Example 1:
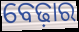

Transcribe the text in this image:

ବେଢ଼ାର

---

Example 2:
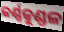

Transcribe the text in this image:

କର୍ଣ୍ଣକୁଣ୍ଡଳ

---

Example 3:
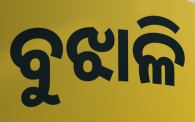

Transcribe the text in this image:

ବୁଝାଳି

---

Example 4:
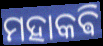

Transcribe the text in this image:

ମହାକଵି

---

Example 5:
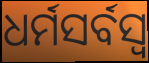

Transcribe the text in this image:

ଧର୍ମସର୍ବସ୍ୱ